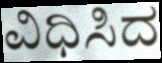
ವಿಧಿಸಿದ